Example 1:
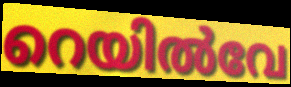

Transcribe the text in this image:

റെയിൽവേ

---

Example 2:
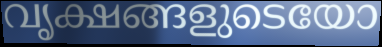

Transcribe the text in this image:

വൃക്ഷങ്ങളുടെയോ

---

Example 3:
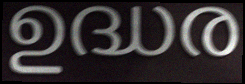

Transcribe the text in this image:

ഉദ്ധര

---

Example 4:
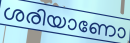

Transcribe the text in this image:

ശരിയാണോ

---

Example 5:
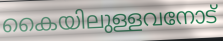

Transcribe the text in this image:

കൈയിലുള്ളവനോട്